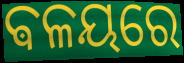
ଵଳୟରେ